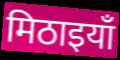
मिठाइयाँ